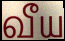
வீய